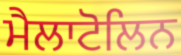
ਮੈਲਾਟੋਲਿਨ